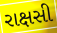
રાક્ષસી